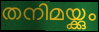
തനിമയ്ക്കും